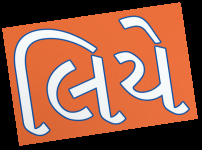
લિયે